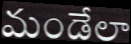
మండేలా